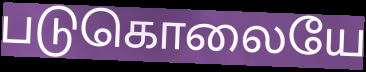
படுகொலையே